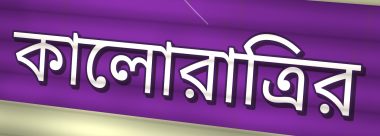
কালোরাত্রির